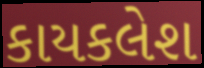
કાયકલેશ